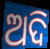
ଅଦି